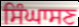
ਸਿੰਘਾਸਣ